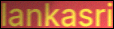
lankasri